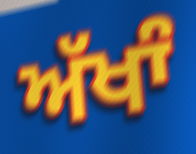
ਅੱਖਾੰ